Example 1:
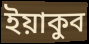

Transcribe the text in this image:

ইয়াকুব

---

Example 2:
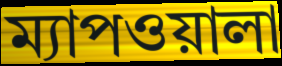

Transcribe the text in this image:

ম্যাপওয়ালা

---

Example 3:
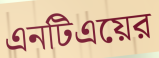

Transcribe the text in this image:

এনটিএয়ের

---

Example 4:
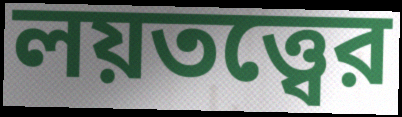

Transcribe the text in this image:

লয়তত্ত্বের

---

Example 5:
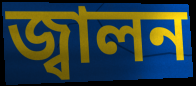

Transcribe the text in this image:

জ্বালন